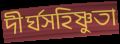
দীর্ঘসহিষ্ণুতা